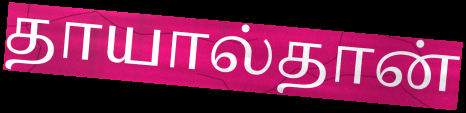
தாயால்தான்